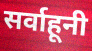
सर्वाहूनी